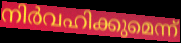
നിർവഹിക്കുമെന്ന്